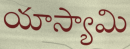
యాస్యామి